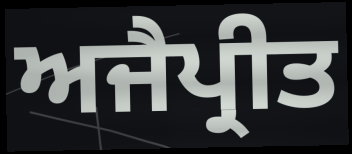
ਅਜੈਪ੍ਰੀਤ